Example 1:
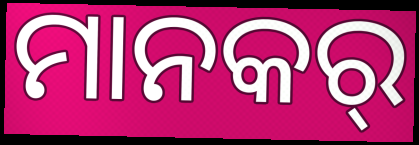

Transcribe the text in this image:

ମାନକର୍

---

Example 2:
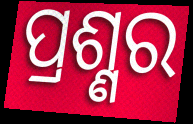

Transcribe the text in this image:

ପ୍ରଶ୍ଣର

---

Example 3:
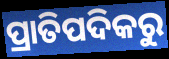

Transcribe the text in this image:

ପ୍ରାତିପଦିକରୁ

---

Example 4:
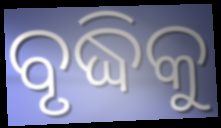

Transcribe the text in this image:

ବୃଦ୍ଧିକୁ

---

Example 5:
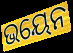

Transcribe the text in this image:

ଭୟେନ